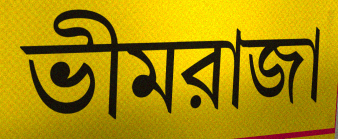
ভীমরাজা